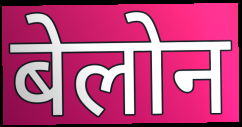
बेलोन